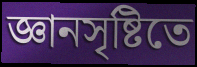
জ্ঞানসৃষ্টিতে